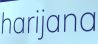
harijana